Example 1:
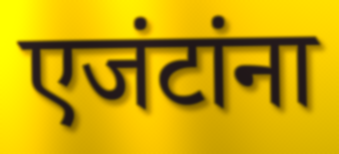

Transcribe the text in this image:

एजंटांना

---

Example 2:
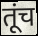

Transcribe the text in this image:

तूंच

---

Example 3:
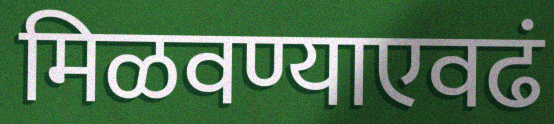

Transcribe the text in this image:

मिळवण्याएवढं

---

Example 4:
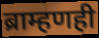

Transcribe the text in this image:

ब्राम्हणही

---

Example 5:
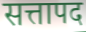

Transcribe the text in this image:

सत्तापद